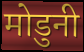
मोडुनी